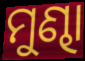
ମୁଣ୍ଢା